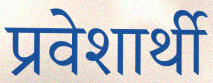
प्रवेशार्थी